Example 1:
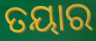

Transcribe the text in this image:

ତୟାର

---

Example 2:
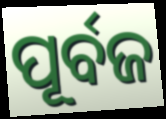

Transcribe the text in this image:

ପୂର୍ବଜ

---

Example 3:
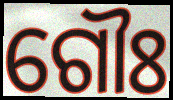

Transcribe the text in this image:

ଗୌଃ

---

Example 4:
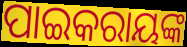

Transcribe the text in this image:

ପାଇକରାୟଙ୍କ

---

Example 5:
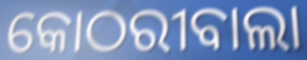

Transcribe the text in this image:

କୋଠରୀବାଲା